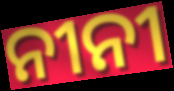
ନୀନୀ